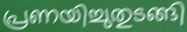
പ്രണയിച്ചുതുടങ്ങി